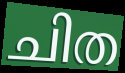
ചിത